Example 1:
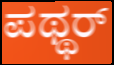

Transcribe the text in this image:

ಪಥ್ಥರ್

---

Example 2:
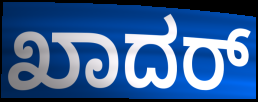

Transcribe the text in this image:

ಖಾದರ್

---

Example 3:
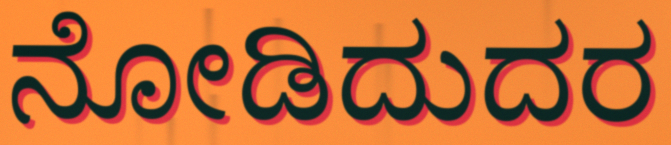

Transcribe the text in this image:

ನೋಡಿದುದರ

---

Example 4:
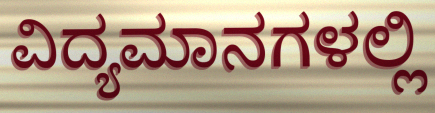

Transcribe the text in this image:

ವಿದ್ಯಮಾನಗಳಲ್ಲಿ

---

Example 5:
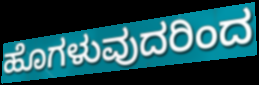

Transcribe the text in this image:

ಹೊಗಳುವುದರಿಂದ